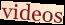
videos